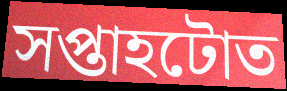
সপ্তাহটোত